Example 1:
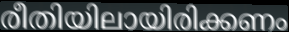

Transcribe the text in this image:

രീതിയിലായിരിക്കണം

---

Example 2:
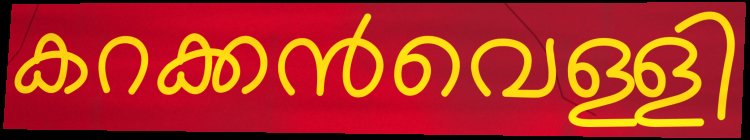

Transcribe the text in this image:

കറക്കൻവെള്ളി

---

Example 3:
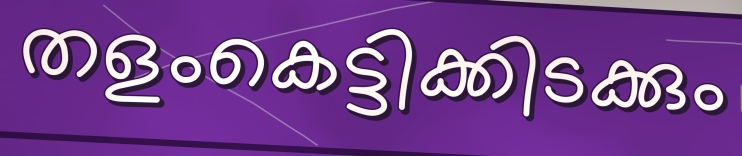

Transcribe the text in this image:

തളംകെട്ടിക്കിടക്കും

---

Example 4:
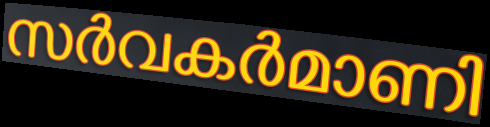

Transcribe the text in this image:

സർവകർമാണി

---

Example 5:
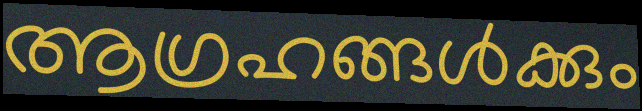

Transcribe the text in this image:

ആഗ്രഹങ്ങൾക്കും